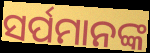
ସର୍ପମାନଙ୍କ